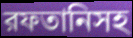
রফতানিসহ